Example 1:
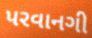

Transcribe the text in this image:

પરવાનગી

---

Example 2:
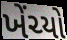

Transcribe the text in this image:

ખેંચ્યો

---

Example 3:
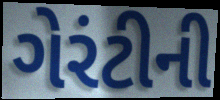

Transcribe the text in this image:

ગેરંટીની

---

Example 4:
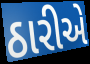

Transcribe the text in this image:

ઠારીએ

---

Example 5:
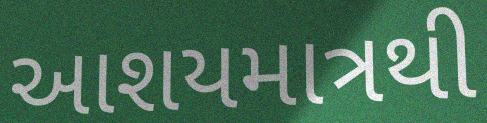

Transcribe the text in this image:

આશયમાત્રથી